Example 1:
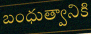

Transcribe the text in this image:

బంధుత్వానికి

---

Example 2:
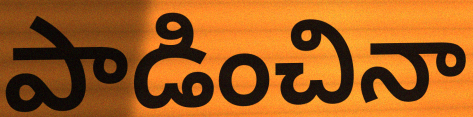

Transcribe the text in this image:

పాడించినా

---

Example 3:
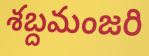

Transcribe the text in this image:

శబ్దమంజరి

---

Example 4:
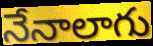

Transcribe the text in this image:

నేనాలాగు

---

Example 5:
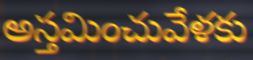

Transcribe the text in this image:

అస్తమించువేళకు